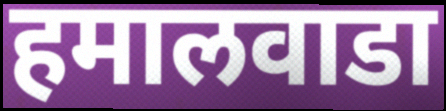
हमालवाडा